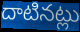
దాటినట్లు